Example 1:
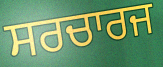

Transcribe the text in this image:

ਸਰਚਾਰਜ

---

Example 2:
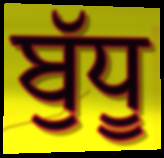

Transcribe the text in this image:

ਬੁੱਧੂ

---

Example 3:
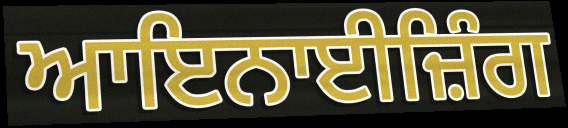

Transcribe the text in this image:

ਆਇਨਾਈਜ਼ਿੰਗ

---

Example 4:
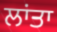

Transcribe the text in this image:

ਲਾਂਤਾ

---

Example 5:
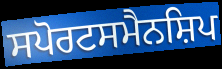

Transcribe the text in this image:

ਸਪੋਰਟਸਮੈਨਸ਼ਿਪ